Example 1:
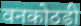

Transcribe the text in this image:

वनकोठडी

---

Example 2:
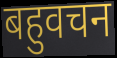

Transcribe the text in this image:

बहुवचन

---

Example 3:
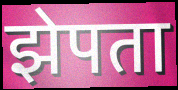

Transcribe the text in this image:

झेपता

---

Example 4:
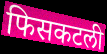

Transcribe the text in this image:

फिसकटली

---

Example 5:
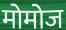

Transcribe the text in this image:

मोमोज